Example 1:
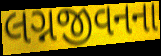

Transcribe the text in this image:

લગ્નજીવનના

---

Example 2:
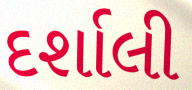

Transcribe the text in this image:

દર્શાલી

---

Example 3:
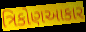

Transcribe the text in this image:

ત્રિકોણઆકાર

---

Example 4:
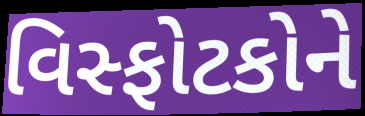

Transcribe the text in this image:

વિસ્ફોટકોને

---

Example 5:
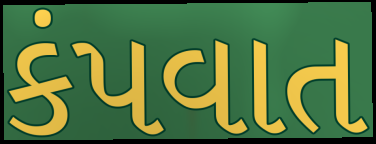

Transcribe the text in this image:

કંપવાત